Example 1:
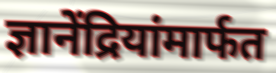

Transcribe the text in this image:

ज्ञानेंद्रियांमार्फत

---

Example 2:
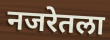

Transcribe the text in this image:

नजरेतला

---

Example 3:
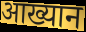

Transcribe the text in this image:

आख्यान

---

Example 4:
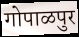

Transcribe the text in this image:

गोपाळपुर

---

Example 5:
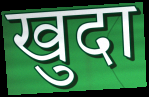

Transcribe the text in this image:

खुदा